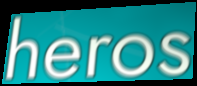
heros